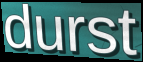
durst